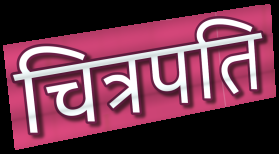
चित्रपति